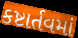
કષ્ટાર્તવમાં